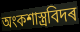
অংকশাস্ত্ৰবিদৰ